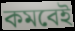
কমবেই